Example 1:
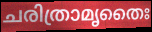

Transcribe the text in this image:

ചരിത്രാമൃതൈഃ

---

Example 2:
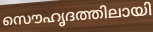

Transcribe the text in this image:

സൌഹൃദത്തിലായി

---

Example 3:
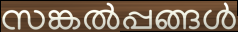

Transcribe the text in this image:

സങ്കൽപ്പങ്ങൾ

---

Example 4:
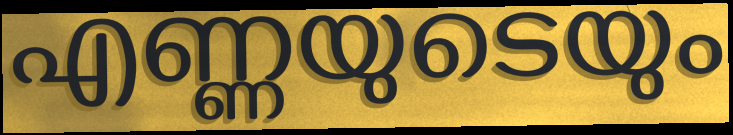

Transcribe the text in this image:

എണ്ണയുടെയും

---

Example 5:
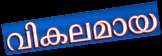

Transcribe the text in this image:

വികലമായ